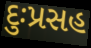
દુઃપ્રસહ